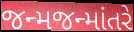
જન્મજન્માંતરે